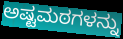
ಅಷ್ಟಮಠಗಳನ್ನು